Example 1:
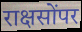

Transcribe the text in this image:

राक्षसोंपर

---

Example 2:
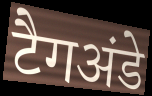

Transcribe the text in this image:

टैगअंडे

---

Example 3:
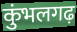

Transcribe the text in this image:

कुंभलगढ़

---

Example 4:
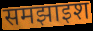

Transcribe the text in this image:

समझाइश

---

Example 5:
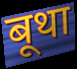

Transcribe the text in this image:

बूथा